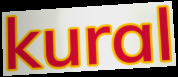
kural